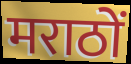
मराठों